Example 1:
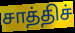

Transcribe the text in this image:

சாத்திச்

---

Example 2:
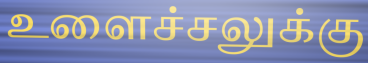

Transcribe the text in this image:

உளைச்சலுக்கு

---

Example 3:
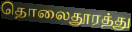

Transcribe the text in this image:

தொலைதூரத்து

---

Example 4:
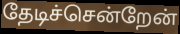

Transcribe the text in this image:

தேடிச்சென்றேன்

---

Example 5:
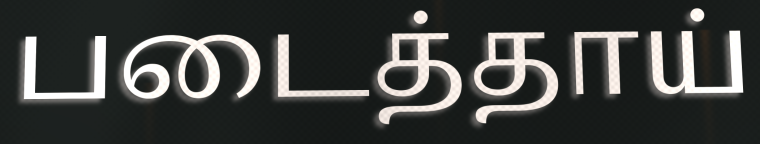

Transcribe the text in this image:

படைத்தாய்